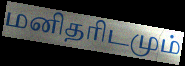
மனிதரிடமும்